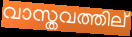
വാസ്തവത്തില്